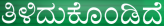
ತಿಳಿದುಕೊಂಡಿದೆ